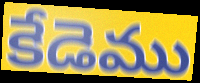
కేడెము